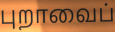
புறாவைப்